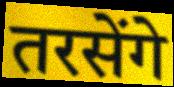
तरसेंगे